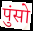
पुंसो